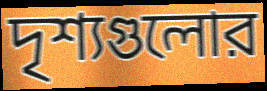
দৃশ্যগুলোর